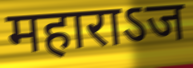
महाराऽज